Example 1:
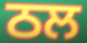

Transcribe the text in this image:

ਠਲ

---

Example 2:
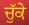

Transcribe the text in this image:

ਚੁੱਕੇ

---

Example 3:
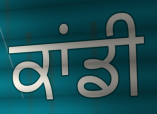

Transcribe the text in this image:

ਕਾਂਡੀ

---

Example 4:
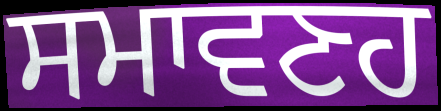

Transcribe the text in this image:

ਸਮਾਵਣਹ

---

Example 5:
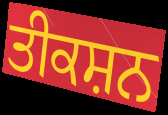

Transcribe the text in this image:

ਤੀਕਸ਼ਨ